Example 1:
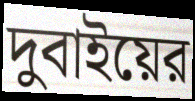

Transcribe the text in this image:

দুবাইয়ের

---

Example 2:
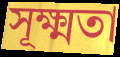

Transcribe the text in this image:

সূক্ষ্মতা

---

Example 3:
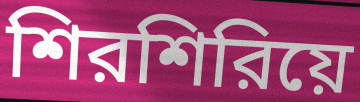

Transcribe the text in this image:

শিরশিরিয়ে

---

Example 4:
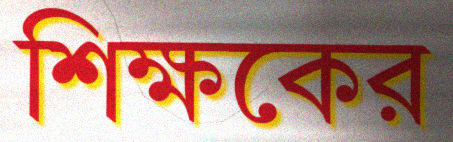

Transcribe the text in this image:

শিক্ষকের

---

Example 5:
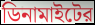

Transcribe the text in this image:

ডিনামাইটের